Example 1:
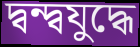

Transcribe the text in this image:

দ্বন্দ্বযুদ্ধে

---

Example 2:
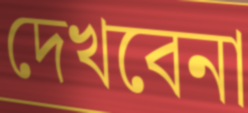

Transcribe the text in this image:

দেখবেনা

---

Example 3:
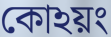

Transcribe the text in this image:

কোঽয়ং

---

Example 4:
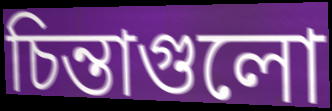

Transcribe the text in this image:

চিন্তাগুলো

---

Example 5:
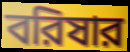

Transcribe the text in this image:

বরিষার